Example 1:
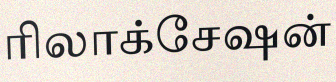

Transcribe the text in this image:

ரிலாக்சேஷன்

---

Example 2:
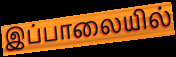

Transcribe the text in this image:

இப்பாலையில்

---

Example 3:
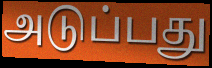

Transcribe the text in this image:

அடுப்பது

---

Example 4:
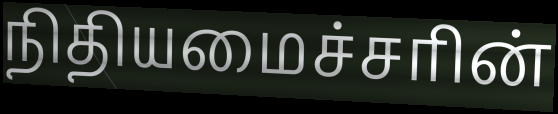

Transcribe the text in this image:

நிதியமைச்சரின்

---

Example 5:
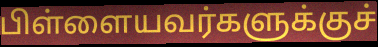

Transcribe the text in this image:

பிள்ளையவர்களுக்குச்